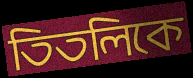
তিতলিকে